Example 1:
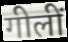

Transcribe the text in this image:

गीलीं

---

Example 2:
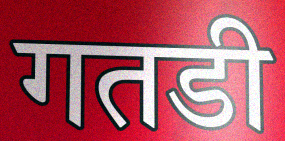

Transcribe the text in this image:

गतडी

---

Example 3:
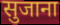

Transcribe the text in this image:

सुजाना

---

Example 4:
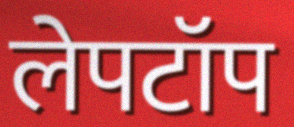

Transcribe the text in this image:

लेपटॉप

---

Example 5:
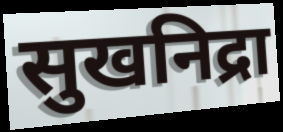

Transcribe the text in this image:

सुखनिद्रा